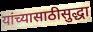
यांच्यासाठीसुद्धा